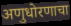
अणुधोरणाचा